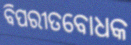
ବିପରୀତବୋଧକ